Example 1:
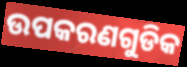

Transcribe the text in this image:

ଉପକରଣଗୁଡିକ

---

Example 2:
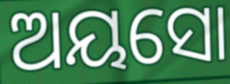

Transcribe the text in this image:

ଅୟସୋ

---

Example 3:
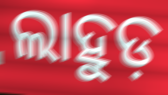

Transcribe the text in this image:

ଲାହୁଡ଼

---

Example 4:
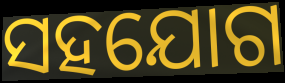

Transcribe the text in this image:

ସହଯୋଗ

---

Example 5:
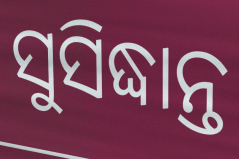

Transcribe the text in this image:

ସୁସିଦ୍ଧାନ୍ତ